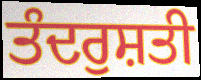
ਤੰਦਰੁਸ਼ਤੀ